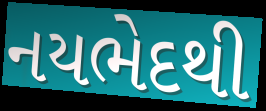
નયભેદથી